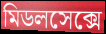
মিডলসেক্সে